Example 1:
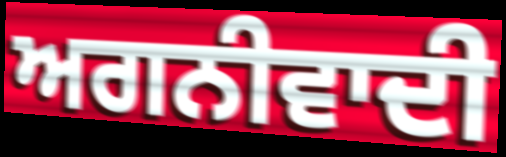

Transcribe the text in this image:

ਅਗਨੀਵਾਦੀ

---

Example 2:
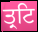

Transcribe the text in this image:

ਤ੍ਰਟਿ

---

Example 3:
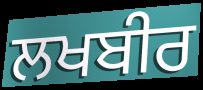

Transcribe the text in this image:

ਲਖਬੀਰ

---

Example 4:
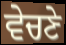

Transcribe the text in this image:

ਵੇਚਣੇ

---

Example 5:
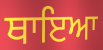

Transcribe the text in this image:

ਥਾਇਆ